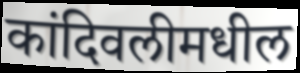
कांदिवलीमधील